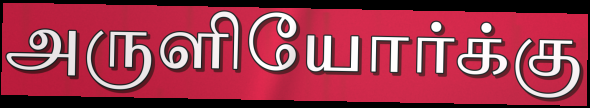
அருளியோர்க்கு